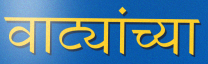
वाट्यांच्या